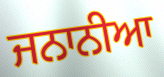
ਜਨਾਨੀਆ